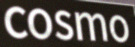
cosmo